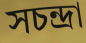
সচন্দ্রা